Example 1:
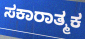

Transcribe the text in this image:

ಸಕಾರಾತ್ಮಕ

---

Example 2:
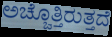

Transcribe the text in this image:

ಅಚ್ಚೊತ್ತಿರುತ್ತದೆ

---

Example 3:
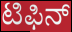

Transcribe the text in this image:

ಟಿಫಿನ್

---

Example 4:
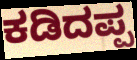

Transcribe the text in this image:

ಕಡಿದಪ್ಪ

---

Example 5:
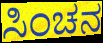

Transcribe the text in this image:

ಸಿಂಚನ